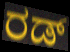
ರಡ್